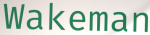
Wakeman